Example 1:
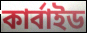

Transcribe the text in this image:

কার্বাইড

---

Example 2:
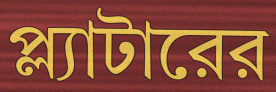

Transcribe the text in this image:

প্ল্যাটারের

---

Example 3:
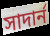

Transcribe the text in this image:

সাদার্ন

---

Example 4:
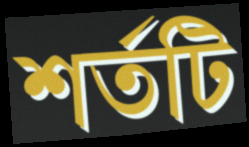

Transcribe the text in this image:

শর্তটি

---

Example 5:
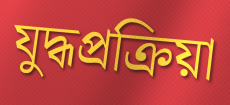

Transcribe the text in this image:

যুদ্ধপ্রক্রিয়া